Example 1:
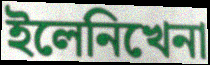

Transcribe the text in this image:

ইলেনিখেনা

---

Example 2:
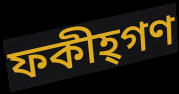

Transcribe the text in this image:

ফকীহ্গণ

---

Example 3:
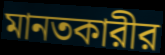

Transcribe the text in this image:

মানতকারীর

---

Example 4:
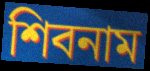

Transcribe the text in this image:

শিবনাম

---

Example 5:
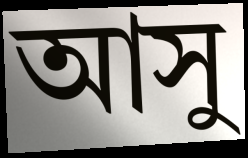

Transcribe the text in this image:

আসু